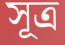
সূত্র